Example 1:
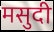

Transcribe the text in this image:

मसुदी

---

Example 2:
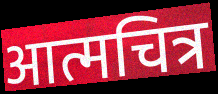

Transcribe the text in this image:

आत्मचित्र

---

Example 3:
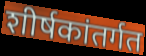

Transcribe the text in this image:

शीर्षकांतर्गत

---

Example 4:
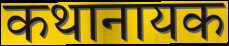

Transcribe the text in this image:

कथानायक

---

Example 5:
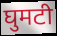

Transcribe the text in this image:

घुमटी